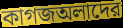
কাগজঅলাদের